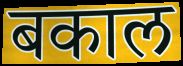
बकाल